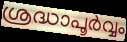
ശ്രദ്ധാപൂർവ്വം